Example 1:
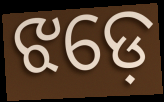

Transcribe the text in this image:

ଝଡ଼େ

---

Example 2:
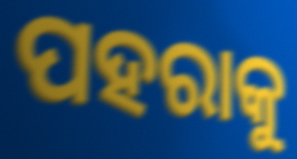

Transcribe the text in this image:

ପହରାକୁ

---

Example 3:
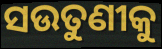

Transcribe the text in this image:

ସଉତୁଣୀକୁ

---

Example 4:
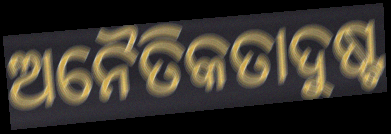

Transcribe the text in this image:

ଅନୈତିକତାଦୁଷ୍ଟ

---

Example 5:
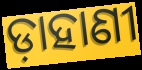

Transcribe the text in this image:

ଡ଼ାହାଣୀ